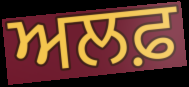
ਅਲਫ਼